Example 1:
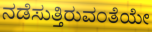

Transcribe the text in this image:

ನಡೆಸುತ್ತಿರುವಂತೆಯೇ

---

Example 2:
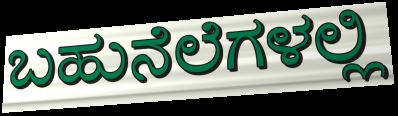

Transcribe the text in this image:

ಬಹುನೆಲೆಗಳಲ್ಲಿ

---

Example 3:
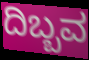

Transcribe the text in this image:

ದಿಬ್ಬವ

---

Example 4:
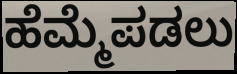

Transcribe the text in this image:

ಹೆಮ್ಮೆಪಡಲು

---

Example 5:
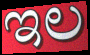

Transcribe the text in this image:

ಇಲ